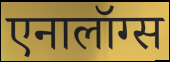
एनालॉग्स